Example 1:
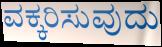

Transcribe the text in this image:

ವಕ್ಕರಿಸುವುದು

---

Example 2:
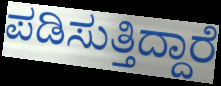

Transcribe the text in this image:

ಪಡಿಸುತ್ತಿದ್ದಾರೆ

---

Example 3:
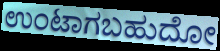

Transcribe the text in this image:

ಉಂಟಾಗಬಹುದೋ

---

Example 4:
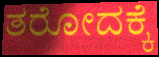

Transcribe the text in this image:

ತರೋದಕ್ಕೆ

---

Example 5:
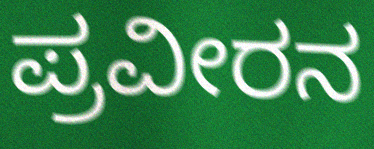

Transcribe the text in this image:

ಪ್ರವೀರನ